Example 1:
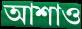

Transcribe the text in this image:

আশাও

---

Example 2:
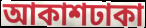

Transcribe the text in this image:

আকাশঢাকা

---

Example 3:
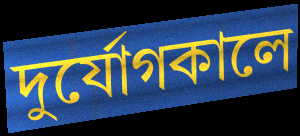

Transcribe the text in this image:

দুর্যোগকালে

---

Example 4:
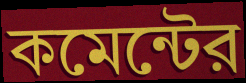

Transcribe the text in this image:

কমেন্টের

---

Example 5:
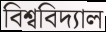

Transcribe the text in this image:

বিশ্ববিদ্যাল